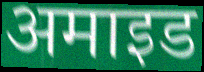
अमाइड